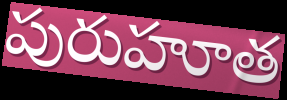
పురుహూత